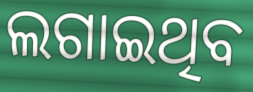
ଲଗାଇଥିବ